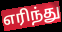
எரிந்து